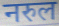
नरुल